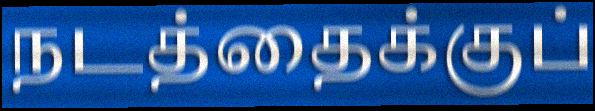
நடத்தைக்குப்